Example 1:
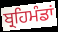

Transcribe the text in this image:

ਬ੍ਰਹਿਮੰਡਾਂ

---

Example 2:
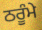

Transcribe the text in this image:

ਠਰੂੰਮੇ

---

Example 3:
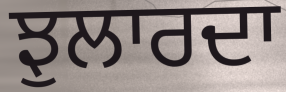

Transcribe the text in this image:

ਝੁਲਾਰਦਾ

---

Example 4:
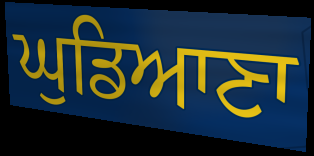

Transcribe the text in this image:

ਘੁਡਿਆਣਾ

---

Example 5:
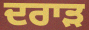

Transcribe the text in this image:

ਦਰਾੜ